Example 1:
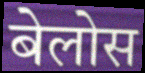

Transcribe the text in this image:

बेलोस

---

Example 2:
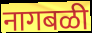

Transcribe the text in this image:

नागबळी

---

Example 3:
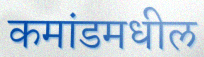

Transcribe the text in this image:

कमांडमधील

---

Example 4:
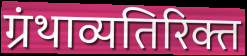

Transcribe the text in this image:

ग्रंथाव्यतिरिक्त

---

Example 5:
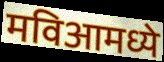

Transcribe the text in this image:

मविआमध्ये